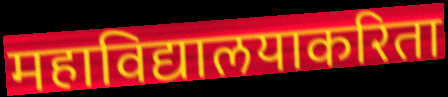
महाविद्यालयाकरिता